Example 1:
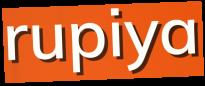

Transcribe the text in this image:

rupiya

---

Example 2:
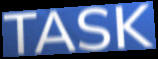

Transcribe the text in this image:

TASK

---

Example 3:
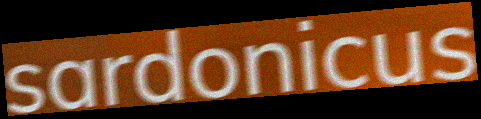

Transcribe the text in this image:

sardonicus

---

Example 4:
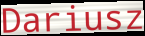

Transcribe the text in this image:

Dariusz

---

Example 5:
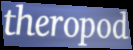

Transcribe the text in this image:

theropod